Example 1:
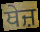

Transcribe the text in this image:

ਥੇਜ਼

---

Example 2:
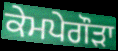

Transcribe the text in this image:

ਕੇਮਪੇਗੌੜਾ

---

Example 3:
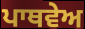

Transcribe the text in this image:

ਪਾਥਵੇਅ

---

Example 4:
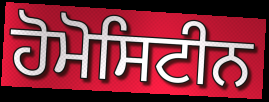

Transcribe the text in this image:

ਹੋਮੋਸਿਟੀਨ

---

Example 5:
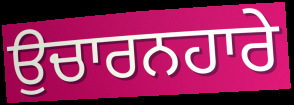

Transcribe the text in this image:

ਉਚਾਰਨਹਾਰੇ